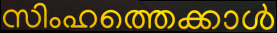
സിംഹത്തെക്കാൾ